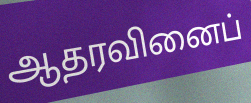
ஆதரவினைப்